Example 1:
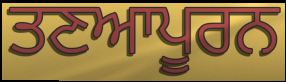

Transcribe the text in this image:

ਤਣਆਪੂਰਨ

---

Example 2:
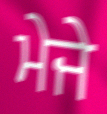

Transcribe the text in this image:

ਮੇਜੇ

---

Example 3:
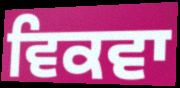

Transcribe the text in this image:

ਵਿਕਵਾ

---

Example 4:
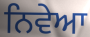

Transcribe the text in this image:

ਨਿਵੇਆ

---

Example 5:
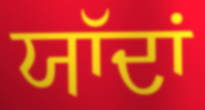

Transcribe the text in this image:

ਯਾੱਦਾਂ